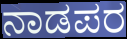
ನಾಡಪರ